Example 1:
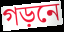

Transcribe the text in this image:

গড়নে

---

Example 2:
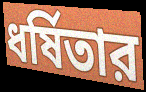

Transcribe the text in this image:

ধর্ষিতার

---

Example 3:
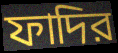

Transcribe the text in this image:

ফাদির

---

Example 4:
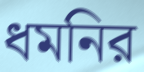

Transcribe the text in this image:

ধমনির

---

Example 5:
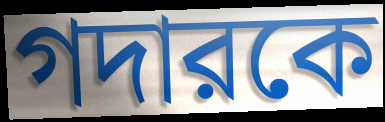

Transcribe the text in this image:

গদারকে